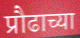
प्रौढाच्या